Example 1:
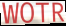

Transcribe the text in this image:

WOTR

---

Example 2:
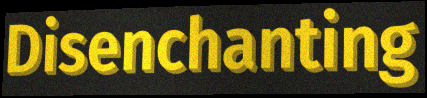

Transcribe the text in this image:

Disenchanting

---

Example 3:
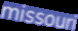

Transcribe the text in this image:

missouri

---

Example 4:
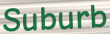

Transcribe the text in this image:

Suburb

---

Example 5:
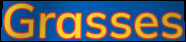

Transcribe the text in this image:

Grasses